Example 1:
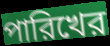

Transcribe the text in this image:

পারিখের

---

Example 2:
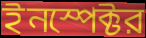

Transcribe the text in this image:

ইনস্পেক্টর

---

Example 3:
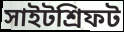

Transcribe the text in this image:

সাইটশ্রিফট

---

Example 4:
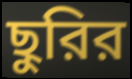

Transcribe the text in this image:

ছুরির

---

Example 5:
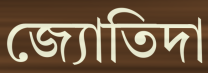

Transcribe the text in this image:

জ্যোতিদা